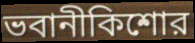
ভবানীকিশোর